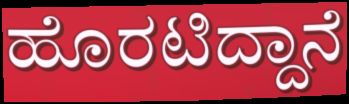
ಹೊರಟಿದ್ದಾನೆ